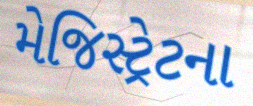
મેજિસ્ટ્રેટના